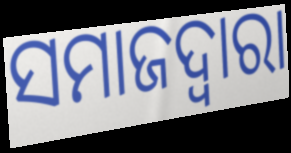
ସମାଜଦ୍ଵାରା